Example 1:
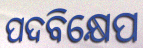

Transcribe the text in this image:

ପଦବିକ୍ଷେପ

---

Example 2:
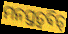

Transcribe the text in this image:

ମନସ୍ତତ୍ଵବିତ୍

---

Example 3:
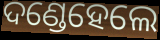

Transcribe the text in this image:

ଦଣ୍ଡେହେଲେ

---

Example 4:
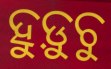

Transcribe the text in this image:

ହୁଡ଼ୁଚୁ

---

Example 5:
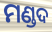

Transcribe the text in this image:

ମଣ୍ଡଦ